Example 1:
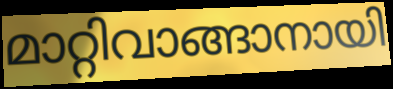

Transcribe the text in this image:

മാറ്റിവാങ്ങാനായി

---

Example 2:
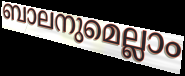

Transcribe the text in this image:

ബാലനുമെല്ലാം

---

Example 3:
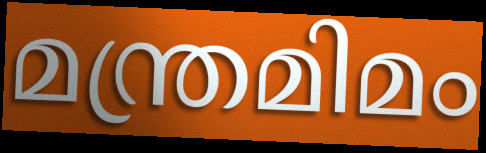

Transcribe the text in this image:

മന്ത്രമിമം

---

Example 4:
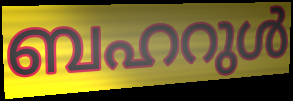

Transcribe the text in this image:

ബഹറുൾ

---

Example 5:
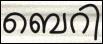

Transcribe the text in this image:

ബെറി